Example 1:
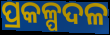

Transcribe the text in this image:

ପ୍ରକଳ୍ପଦଳ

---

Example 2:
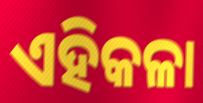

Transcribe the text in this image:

ଏହିକଳା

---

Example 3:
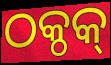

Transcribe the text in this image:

ଠକ୍ଠକ୍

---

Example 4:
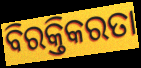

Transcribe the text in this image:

ବିରକ୍ତିକରତା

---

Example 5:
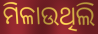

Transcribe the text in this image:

ମିଳାଉଥିଲି